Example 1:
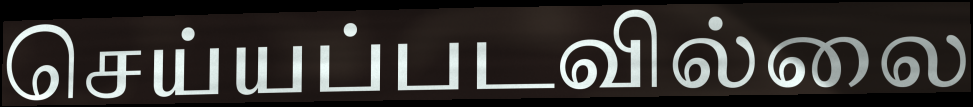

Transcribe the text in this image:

செய்யப்படவில்லை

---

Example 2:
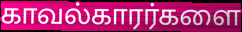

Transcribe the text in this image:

காவல்காரர்களை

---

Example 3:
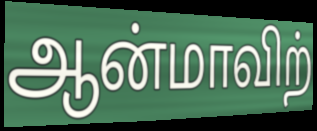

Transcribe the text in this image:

ஆன்மாவிற்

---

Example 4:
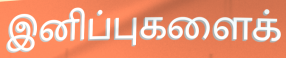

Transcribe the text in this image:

இனிப்புகளைக்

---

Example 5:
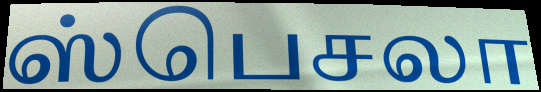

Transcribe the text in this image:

ஸ்பெசலா